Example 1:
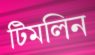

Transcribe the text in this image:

টিমলিন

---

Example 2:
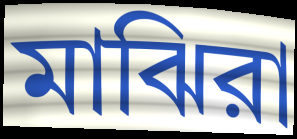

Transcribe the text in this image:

মাঝিরা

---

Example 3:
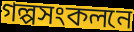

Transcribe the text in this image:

গল্পসংকলনে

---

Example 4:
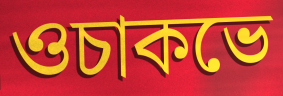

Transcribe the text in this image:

ওচাকভে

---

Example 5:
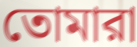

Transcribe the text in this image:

তোমারা